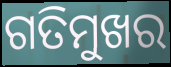
ଗତିମୁଖର